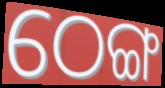
ଠେଙ୍ଗ